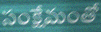
సంక్షేమంతో